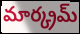
మార్క్రమ్